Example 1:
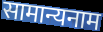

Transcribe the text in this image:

सामान्यनाम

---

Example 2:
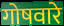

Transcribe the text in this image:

गोषवारे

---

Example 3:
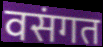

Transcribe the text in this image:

वसंगत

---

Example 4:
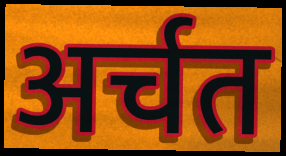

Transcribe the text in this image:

अर्चत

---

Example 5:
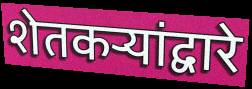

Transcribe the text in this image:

शेतकऱ्यांद्वारे